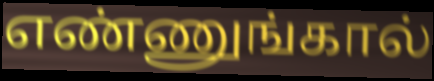
எண்ணுங்கால்